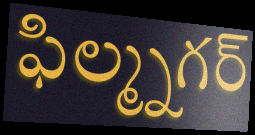
ఫిల్మ్నగర్